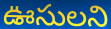
ఊసులని